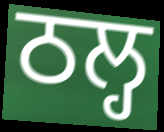
ਠਲ੍ਹ